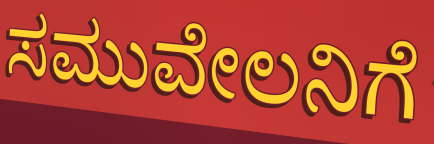
ಸಮುವೇಲನಿಗೆ